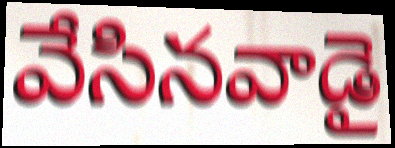
వేసినవాడై